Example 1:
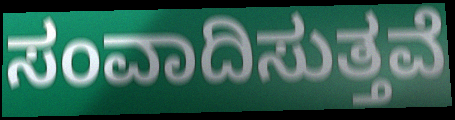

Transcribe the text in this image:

ಸಂವಾದಿಸುತ್ತವೆ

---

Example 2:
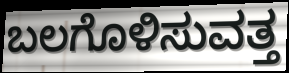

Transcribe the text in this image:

ಬಲಗೊಳಿಸುವತ್ತ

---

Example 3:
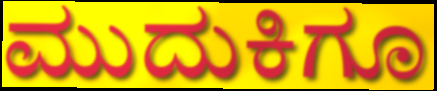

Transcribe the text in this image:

ಮುದುಕಿಗೂ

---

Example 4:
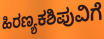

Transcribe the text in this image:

ಹಿರಣ್ಯಕಶಿಪುವಿಗೆ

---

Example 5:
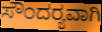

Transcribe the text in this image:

ಸೌಂದರ‍್ಯವಾಗಿ